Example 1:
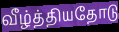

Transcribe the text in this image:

வீழ்த்தியதோடு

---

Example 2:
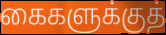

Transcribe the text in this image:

கைகளுக்குத்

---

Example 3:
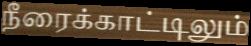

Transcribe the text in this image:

நீரைக்காட்டிலும்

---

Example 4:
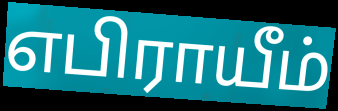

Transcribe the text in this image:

எபிராயீம்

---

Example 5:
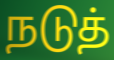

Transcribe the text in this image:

நடுத்